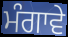
ਮੰਗਾਵੇ